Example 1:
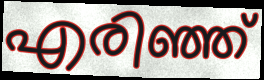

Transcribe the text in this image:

എരിഞ്ഞ്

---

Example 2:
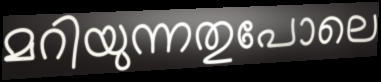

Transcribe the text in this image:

മറിയുന്നതുപോലെ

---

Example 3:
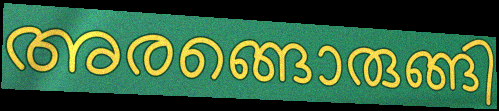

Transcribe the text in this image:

അരങ്ങൊരുങ്ങി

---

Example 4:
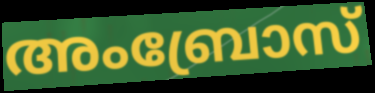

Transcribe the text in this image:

അംബ്രോസ്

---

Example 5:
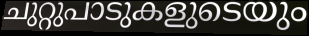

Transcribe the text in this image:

ചുറ്റുപാടുകളുടെയും